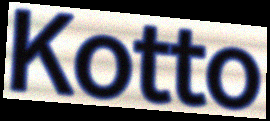
Kotto